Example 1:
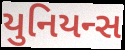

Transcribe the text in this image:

યુનિયન્સ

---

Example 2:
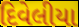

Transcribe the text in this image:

દિવેલીયા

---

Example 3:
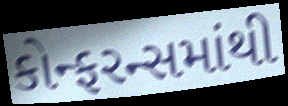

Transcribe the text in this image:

કોન્ફરન્સમાંથી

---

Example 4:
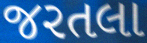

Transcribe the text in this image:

જરતલા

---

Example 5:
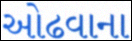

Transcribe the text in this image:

ઓઢવાના